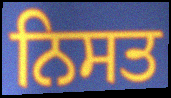
ਨਿਸਤ